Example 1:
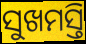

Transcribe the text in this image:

ସୁଖମସ୍ତି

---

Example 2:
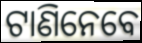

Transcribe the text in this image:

ଟାଣିନେବେ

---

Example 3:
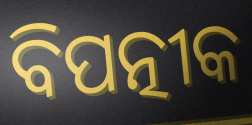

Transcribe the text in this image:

ବିପତ୍ନୀକ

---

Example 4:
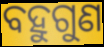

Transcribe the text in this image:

ବହୁଗୁଣ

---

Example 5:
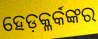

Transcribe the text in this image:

ହେଡ଼କ୍ଳର୍କଙ୍କର